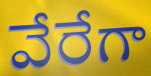
వేరేగా